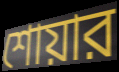
শোয়ার